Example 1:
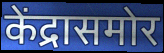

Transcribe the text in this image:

केंद्रासमोर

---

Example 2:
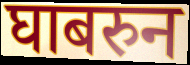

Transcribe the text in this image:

घाबरुन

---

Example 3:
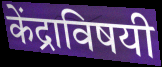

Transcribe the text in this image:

केंद्राविषयी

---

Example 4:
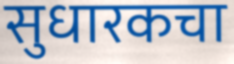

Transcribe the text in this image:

सुधारकचा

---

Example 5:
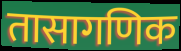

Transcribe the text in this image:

तासागणिक